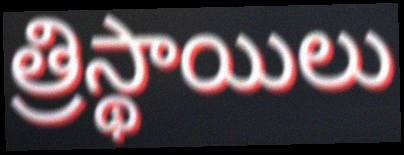
త్రిస్థాయిలు